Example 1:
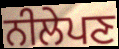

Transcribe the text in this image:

ਨੀਲੇਪਣ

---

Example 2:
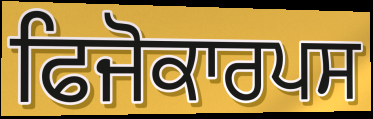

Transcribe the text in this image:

ਫਿਜੋਕਾਰਪਸ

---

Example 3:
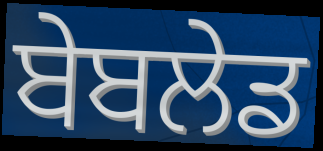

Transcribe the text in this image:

ਬੇਬਲੇਡ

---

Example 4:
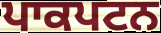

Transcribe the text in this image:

ਪਾਕਪਟਨ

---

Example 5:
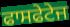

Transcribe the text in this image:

ਫਾਸਫੇਟੇਜ